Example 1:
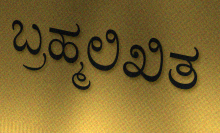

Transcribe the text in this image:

ಬ್ರಹ್ಮಲಿಖಿತ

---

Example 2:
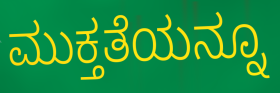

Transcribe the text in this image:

ಮುಕ್ತತೆಯನ್ನೂ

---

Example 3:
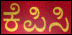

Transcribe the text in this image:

ಕೆಪಿಸಿ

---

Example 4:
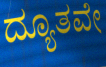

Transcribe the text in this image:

ದ್ಯೂತವೇ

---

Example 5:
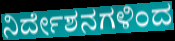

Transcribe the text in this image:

ನಿರ್ದೇಶನಗಳಿಂದ